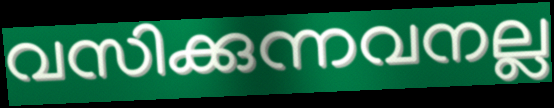
വസിക്കുന്നവനല്ല